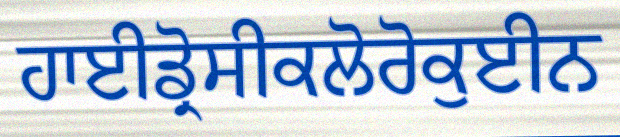
ਹਾਈਡ੍ਰੋਸੀਕਲੋਰੋਕੁਈਨ